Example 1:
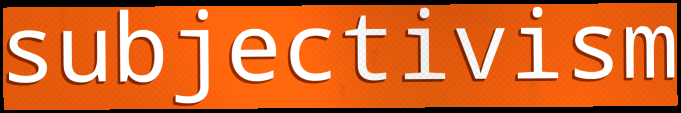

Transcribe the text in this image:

subjectivism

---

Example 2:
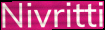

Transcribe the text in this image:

Nivritti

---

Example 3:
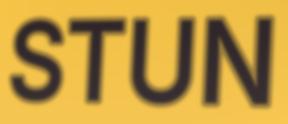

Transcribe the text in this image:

STUN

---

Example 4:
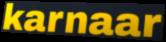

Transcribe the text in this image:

karnaar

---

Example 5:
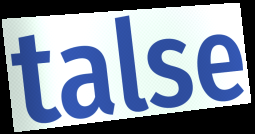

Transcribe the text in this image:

talse